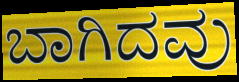
ಬಾಗಿದವು